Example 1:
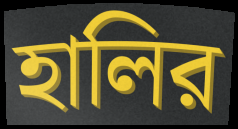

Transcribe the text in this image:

হালির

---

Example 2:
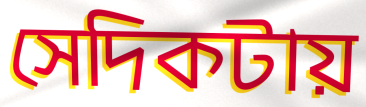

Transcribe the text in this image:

সেদিকটায়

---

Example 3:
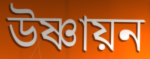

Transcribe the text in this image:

উষ্ণায়ন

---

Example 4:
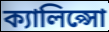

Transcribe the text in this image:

ক্যালিপ্সো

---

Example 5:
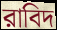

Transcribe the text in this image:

রাবিদ